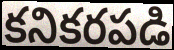
కనికరపడి